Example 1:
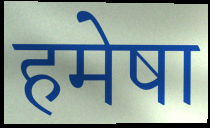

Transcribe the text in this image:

हमेषा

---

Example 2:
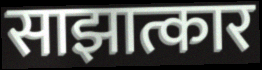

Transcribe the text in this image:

साझात्कार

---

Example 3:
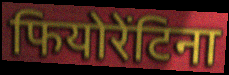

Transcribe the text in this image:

फियोरेंटिना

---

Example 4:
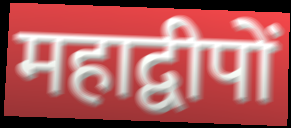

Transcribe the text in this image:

महाद्वीपों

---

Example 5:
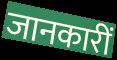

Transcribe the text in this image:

जानकारीं